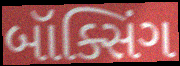
બૉક્સિંગ